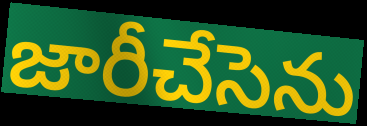
జారీచేసెను